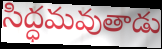
సిద్ధమవుతాడు